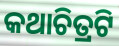
କଥାଚିତ୍ରଟି